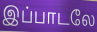
இப்பாடலே